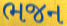
ભજન